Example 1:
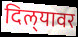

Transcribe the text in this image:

दिल्यावर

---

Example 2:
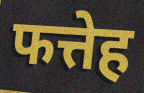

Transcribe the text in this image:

फत्तेह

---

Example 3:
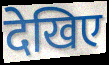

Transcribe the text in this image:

देखिए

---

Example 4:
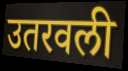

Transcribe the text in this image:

उतरवली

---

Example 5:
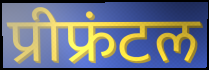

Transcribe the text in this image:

प्रीफ्रंटल